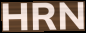
HRN